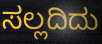
ಸಲ್ಲದಿದು